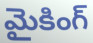
మైకింగ్